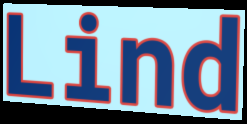
Lind